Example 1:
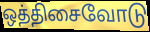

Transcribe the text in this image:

ஒத்திசைவோடு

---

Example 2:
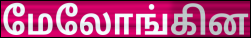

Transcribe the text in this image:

மேலோங்கின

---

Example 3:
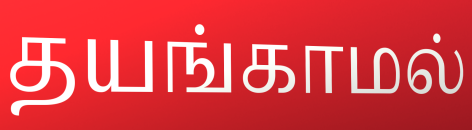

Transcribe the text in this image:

தயங்காமல்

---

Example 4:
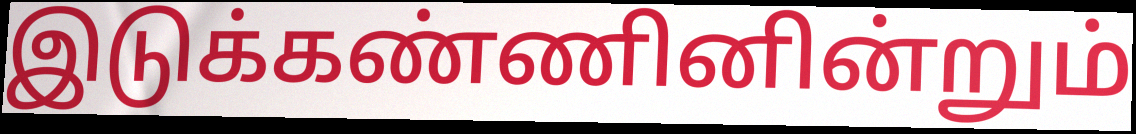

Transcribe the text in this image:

இடுக்கண்ணினின்றும்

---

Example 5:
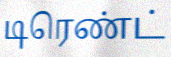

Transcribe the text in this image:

டிரெண்ட்